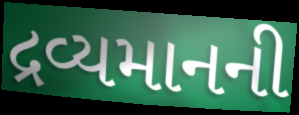
દ્રવ્યમાનની